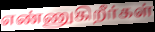
எண்ணுகிறீர்கள்